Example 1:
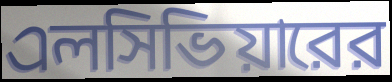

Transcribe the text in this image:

এলসিভিয়ারের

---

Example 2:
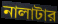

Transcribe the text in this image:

নালাটার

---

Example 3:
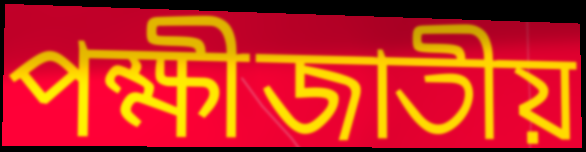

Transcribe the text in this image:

পক্ষীজাতীয়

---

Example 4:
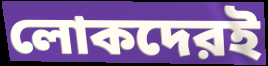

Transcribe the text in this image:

লোকদেরই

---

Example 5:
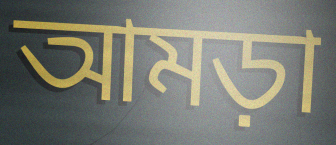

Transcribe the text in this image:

আমড়া